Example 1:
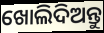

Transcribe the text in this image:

ଖୋଲିଦିଅନ୍ତୁ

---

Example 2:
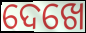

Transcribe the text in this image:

ଦେଖେ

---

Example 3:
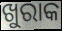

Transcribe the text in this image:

ଖୁରାକ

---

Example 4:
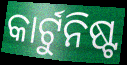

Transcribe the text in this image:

କାର୍ଟୁନିଷ୍ଟ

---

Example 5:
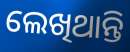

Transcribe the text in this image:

ଲେଖିଥାନ୍ତି